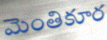
మెంతికూర